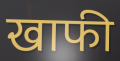
खाफी